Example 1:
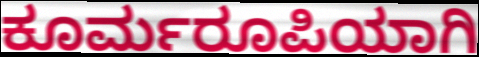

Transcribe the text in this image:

ಕೂರ್ಮರೂಪಿಯಾಗಿ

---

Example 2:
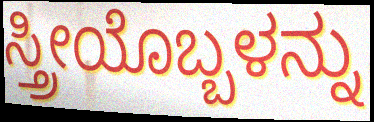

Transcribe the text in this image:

ಸ್ತ್ರೀಯೊಬ್ಬಳನ್ನು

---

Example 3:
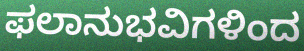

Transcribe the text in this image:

ಫಲಾನುಭವಿಗಳಿಂದ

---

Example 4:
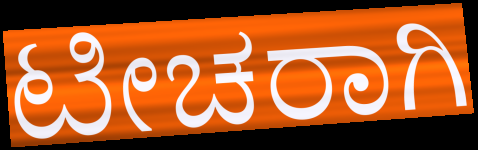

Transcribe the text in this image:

ಟೀಚರಾಗಿ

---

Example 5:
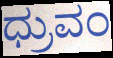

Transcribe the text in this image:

ಧ್ರುವಂ